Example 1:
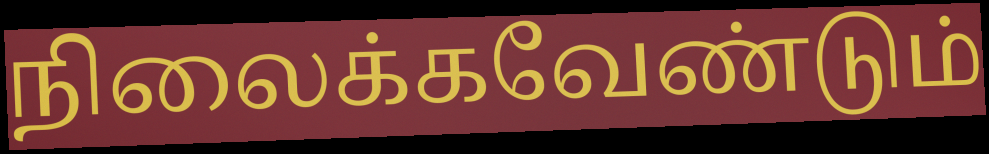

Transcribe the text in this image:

நிலைக்கவேண்டும்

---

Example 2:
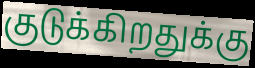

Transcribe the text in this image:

குடுக்கிறதுக்கு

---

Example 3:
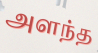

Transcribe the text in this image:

அளந்த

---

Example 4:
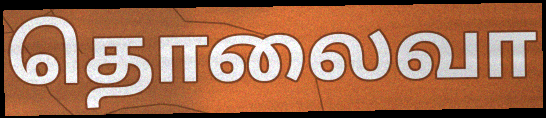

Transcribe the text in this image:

தொலைவா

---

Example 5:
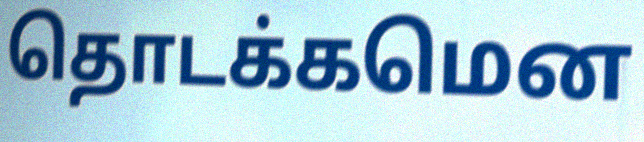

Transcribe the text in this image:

தொடக்கமென